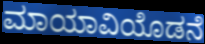
ಮಾಯಾವಿಯೊಡನೆ